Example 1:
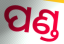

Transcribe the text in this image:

ପଣ୍ଡ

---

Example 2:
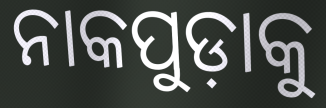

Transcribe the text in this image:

ନାକପୁଡ଼ାକୁ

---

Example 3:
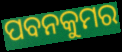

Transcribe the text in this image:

ପବନକୁମର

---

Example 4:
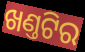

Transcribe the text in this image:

ଖଣ୍ତଟିର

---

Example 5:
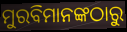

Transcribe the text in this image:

ମୁରବିମାନଙ୍କଠାରୁ